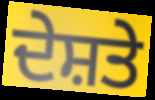
ਦੇਸ਼ਤੇ